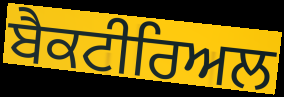
ਬੈਕਟੀਰਿਅਲ